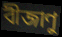
বীজাণু